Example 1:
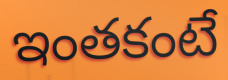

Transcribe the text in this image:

ఇంతకంటే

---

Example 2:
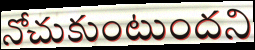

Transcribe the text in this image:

నోచుకుంటుందని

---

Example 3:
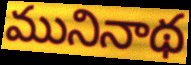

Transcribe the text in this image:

మునినాథ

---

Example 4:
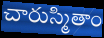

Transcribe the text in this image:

చారుస్మితాం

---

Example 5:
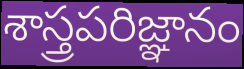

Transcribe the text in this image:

శాస్త్రపరిజ్ఞానం